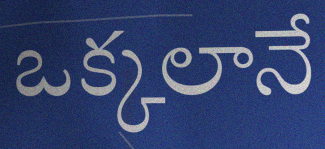
ఒక్కలానే